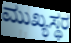
ಮುಖ್ಯಸ್ಥರ